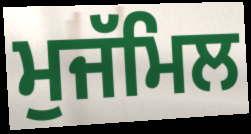
ਮੁਜੱਮਿਲ